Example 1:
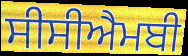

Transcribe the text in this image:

ਸੀਸੀਐਮਬੀ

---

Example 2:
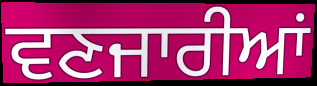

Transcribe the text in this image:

ਵਣਜਾਰੀਆਂ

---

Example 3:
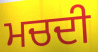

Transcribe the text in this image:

ਮਚਦੀ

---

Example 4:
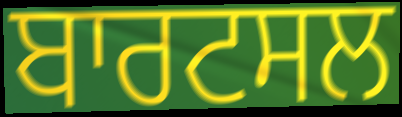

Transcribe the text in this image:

ਬਾਰਟਸਲ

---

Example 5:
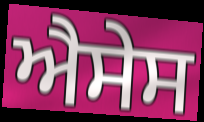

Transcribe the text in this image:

ਐਸੇਸ